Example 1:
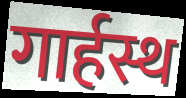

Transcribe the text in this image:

गार्हस्थ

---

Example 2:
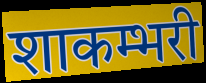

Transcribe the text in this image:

शाकम्भरी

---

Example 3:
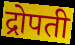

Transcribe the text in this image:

द्रोपती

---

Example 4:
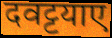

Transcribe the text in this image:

दवट्टयाए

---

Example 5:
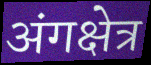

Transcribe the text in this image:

अंगक्षेत्र